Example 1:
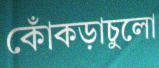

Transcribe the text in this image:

কোঁকড়াচুলো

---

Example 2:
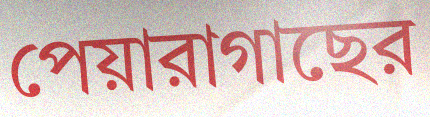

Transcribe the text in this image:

পেয়ারাগাছের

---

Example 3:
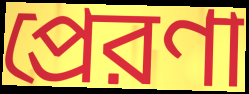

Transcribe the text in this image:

প্রেরণা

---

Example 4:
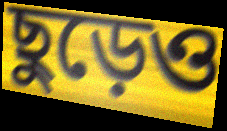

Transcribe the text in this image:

ছুড়েও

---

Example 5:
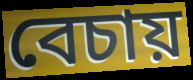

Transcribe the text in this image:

বেচায়